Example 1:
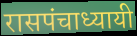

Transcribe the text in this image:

रासपंचाध्यायी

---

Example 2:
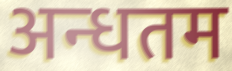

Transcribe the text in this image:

अन्धतम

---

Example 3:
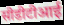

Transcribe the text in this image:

सीडीटीआई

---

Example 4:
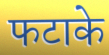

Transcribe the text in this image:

फटाके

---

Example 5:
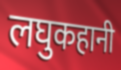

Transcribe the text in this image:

लघुकहानी